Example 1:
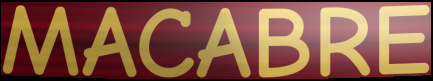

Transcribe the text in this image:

MACABRE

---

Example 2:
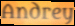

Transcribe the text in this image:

Andrey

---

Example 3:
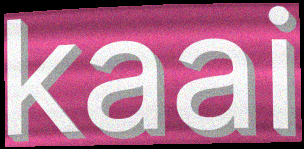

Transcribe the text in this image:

kaai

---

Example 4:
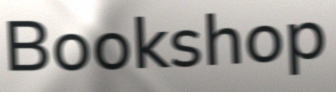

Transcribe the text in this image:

Bookshop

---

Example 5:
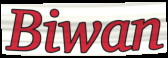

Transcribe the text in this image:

Biwan